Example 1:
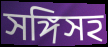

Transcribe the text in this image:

সঙ্গিসহ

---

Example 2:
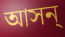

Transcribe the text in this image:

আসন্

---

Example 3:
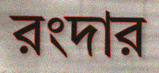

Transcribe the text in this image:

রংদার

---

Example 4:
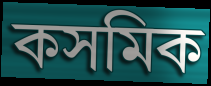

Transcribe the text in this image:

কসমিক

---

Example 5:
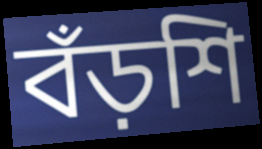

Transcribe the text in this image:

বঁড়শি